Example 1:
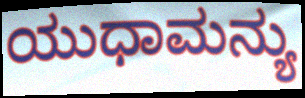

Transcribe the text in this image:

ಯುಧಾಮನ್ಯು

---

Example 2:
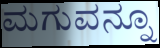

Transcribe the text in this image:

ಮಗುವನ್ನೂ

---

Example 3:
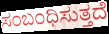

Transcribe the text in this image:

ಸಂಬಂಧಿಸುತ್ತದೆ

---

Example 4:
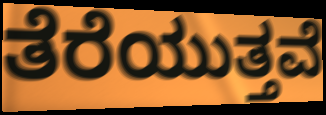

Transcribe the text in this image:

ತೆರೆಯುತ್ತವೆ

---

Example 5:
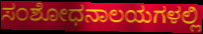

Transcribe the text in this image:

ಸಂಶೋಧನಾಲಯಗಳಲ್ಲಿ